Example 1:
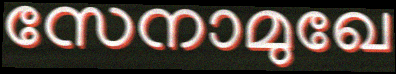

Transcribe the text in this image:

സേനാമുഖേ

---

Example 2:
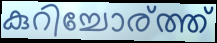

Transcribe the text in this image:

കുറിച്ചോര്ത്ത്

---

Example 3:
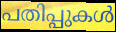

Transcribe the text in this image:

പതിപ്പുകൾ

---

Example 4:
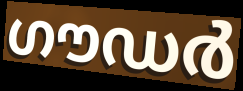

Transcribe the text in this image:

ഗൗഡർ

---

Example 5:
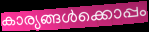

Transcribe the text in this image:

കാര്യങ്ങൾക്കൊപ്പം